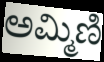
ಅಮ್ಮಿಣಿ